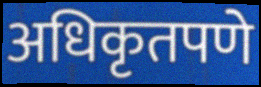
अधिकृतपणे